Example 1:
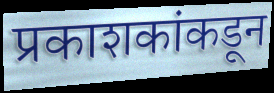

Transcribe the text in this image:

प्रकाशकांकडून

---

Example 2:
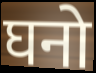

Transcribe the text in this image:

घनो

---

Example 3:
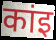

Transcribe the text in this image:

कांइ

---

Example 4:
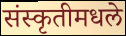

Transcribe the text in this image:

संस्कृतीमधले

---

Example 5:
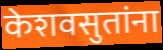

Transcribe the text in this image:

केशवसुतांना